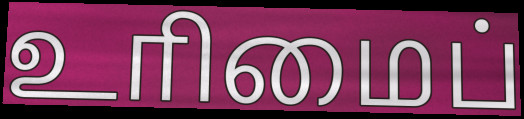
உரிமைப்